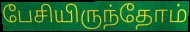
பேசியிருந்தோம்